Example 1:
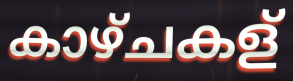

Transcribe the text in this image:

കാഴ്ചകള്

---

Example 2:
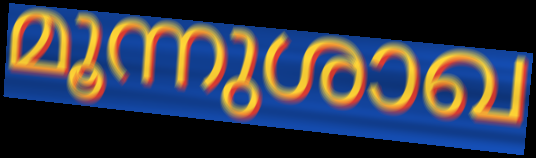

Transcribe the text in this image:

മൂന്നുശാഖ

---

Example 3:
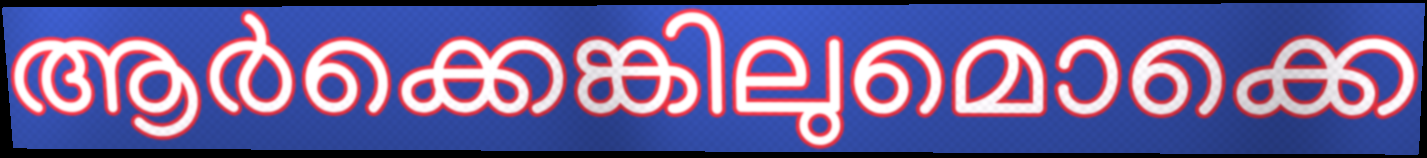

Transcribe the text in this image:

ആർക്കെങ്കിലുമൊക്കെ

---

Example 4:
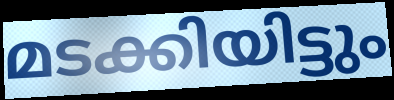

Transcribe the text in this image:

മടക്കിയിട്ടും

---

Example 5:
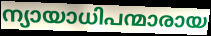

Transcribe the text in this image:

ന്യായാധിപന്മാരായ